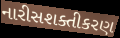
નારીસશક્તીકરણ